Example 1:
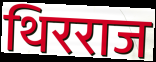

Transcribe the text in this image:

थिरराज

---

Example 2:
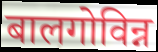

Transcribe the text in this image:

बालगोविन्न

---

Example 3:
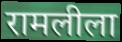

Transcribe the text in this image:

रामलीला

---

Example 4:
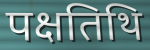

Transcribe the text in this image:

पक्षतिथि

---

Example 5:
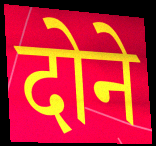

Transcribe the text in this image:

दोने